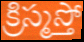
క్రిస్మస్తో